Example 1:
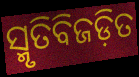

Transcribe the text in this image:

ସ୍ମୃତିବିଜଡ଼ିତ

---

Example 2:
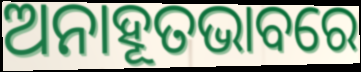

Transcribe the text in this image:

ଅନାହୂତଭାବରେ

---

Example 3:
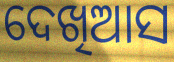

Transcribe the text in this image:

ଦେଖିଆସ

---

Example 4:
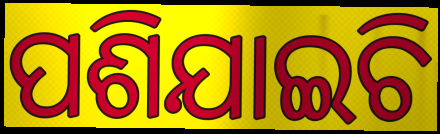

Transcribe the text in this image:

ପଶିଯାଇଚି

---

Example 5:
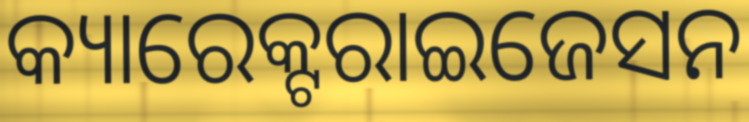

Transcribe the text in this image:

କ୍ୟାରେକ୍ଟରାଇଜେସନ